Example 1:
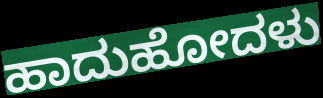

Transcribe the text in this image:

ಹಾದುಹೋದಳು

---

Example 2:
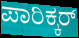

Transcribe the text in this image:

ಪಾರಿಕ್ಕರ್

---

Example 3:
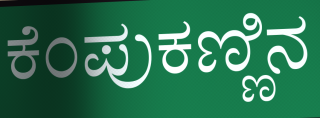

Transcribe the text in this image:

ಕೆಂಪುಕಣ್ಣಿನ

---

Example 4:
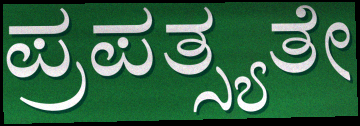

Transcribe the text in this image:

ಪ್ರಪತ್ಸ್ಯತೇ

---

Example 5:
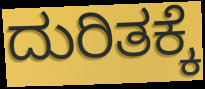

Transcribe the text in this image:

ದುರಿತಕ್ಕೆ